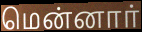
மென்னார்